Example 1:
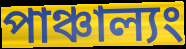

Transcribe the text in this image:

পাঞ্চাল্যং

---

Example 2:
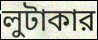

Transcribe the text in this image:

লুটাকার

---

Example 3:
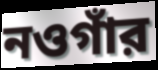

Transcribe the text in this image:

নওগাঁর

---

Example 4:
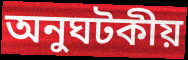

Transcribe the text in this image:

অনুঘটকীয়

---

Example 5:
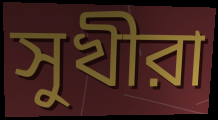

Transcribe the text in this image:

সুখীরা